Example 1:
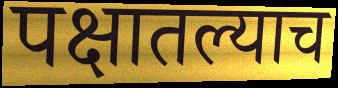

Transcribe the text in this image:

पक्षातल्याच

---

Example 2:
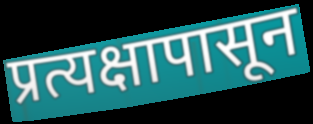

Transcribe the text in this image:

प्रत्यक्षापासून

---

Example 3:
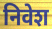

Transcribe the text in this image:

निवेश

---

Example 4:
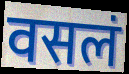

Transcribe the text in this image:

वसलं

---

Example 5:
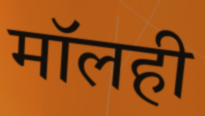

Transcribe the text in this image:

मॉलही